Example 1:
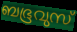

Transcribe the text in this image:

ബഭൂവുസ്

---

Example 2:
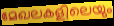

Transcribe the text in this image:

മേഖലകളിലെയും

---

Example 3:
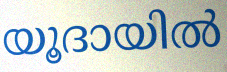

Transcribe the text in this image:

യൂദായിൽ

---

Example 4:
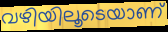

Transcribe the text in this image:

വഴിയിലൂടെയാണ്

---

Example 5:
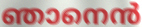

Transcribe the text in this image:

ഞാനെൻ